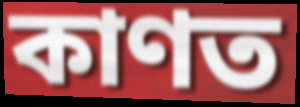
কাণত